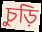
চুড়ি